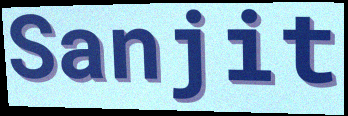
Sanjit